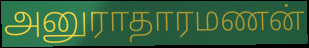
அனுராதாரமணன்